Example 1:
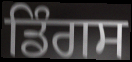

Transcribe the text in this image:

ਡਿੰਗਸ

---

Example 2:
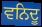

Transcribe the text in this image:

ਵਨਿਦੂ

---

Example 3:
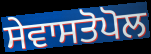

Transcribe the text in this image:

ਸੇਵਾਸਤੋਪੋਲ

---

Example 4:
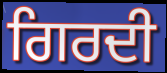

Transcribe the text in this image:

ਗਿਰਦੀ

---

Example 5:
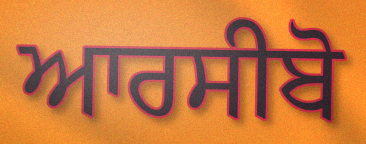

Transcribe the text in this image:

ਆਰਸੀਬੋ